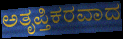
ಅತೃಪ್ತಿಕರವಾದ